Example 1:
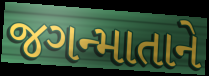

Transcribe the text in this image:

જગન્માતાને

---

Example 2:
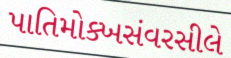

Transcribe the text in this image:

પાતિમોક્ખસંવરસીલે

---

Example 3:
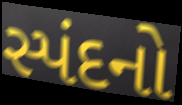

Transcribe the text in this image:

સ્પંદનો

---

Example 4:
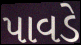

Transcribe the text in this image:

પાવડે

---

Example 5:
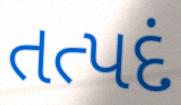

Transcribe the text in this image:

તત્પદં